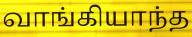
வாங்கியாந்த